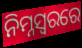
ନିମ୍ନସ୍ୱରରେ